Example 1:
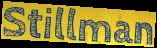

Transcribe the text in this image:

Stillman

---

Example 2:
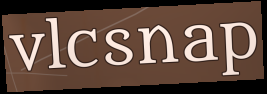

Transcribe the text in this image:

vlcsnap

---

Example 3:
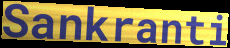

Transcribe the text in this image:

Sankranti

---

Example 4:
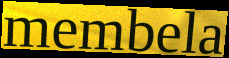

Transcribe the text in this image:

membela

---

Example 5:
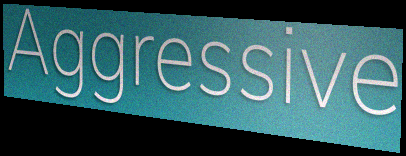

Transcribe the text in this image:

Aggressive